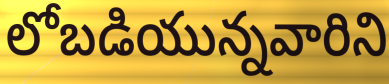
లోబడియున్నవారిని